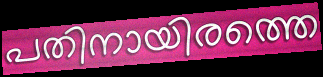
പതിനായിരത്തെ